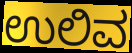
ಉಲಿವ